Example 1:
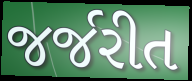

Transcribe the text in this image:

જર્જરીત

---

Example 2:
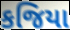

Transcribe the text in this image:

કજિયા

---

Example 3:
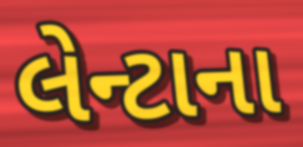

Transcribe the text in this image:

લેન્ટાના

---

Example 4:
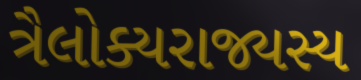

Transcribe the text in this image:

ત્રૈલોક્યરાજ્યસ્ય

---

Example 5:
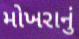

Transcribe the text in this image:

મોખરાનું